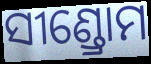
ସୀଣ୍ଡ୍ରୋମ